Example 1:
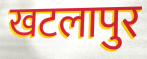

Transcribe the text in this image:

खटलापुर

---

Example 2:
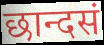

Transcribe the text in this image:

छान्दसं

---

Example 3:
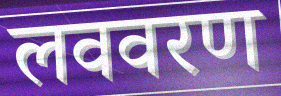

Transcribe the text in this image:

लववरण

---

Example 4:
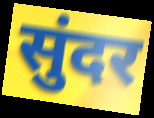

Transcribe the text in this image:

सुंदर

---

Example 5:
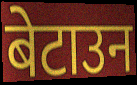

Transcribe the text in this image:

बेटाउन